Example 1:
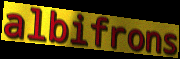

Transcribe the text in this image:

albifrons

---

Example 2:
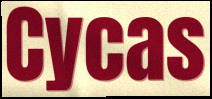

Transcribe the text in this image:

Cycas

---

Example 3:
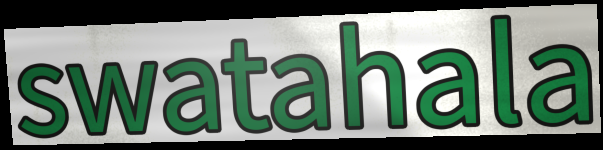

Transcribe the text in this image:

swatahala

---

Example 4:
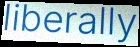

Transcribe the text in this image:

liberally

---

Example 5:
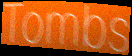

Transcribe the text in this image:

Tombs